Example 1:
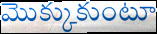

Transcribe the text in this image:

మొక్కుకుంటూ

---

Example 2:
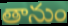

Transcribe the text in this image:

తానుం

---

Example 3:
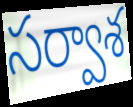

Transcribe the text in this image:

సర్వాశ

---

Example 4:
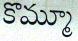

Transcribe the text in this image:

కొమ్మూ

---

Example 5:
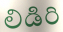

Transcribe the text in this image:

లిడిరి